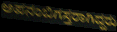
ಅಪನಂಬಿಗಸ್ತರಾಗಿದ್ದರು